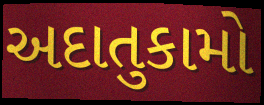
અદાતુકામો